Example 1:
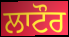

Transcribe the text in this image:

ਲਾਟੌਰ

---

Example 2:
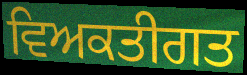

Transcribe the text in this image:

ਵਿਅਕਤੀਗਤ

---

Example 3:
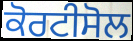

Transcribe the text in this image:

ਕੋਰਟੀਸੋਲ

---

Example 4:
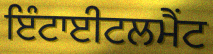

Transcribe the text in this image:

ਇੰਟਾਈਟਲਮੈਂਟ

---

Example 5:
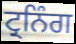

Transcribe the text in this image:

ਟ੍ਰਨਿੰਗ